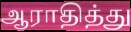
ஆராதித்து